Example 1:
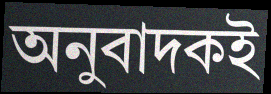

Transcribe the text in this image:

অনুবাদকই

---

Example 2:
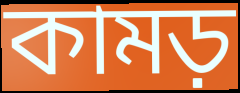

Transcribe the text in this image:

কামড়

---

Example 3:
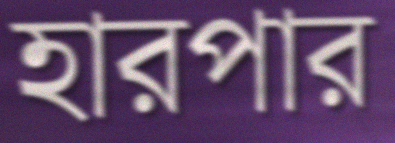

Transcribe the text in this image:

হারপার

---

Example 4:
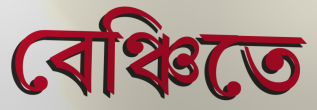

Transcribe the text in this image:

বেঞ্চিতে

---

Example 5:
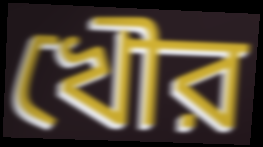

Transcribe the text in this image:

খৌর